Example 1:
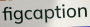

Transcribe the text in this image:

figcaption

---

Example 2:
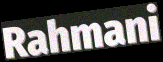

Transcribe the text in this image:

Rahmani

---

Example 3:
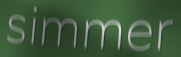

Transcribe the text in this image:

simmer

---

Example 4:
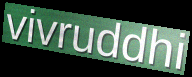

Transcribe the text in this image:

vivruddhi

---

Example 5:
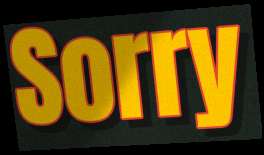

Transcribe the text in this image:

Sorry